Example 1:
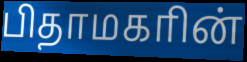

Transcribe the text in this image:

பிதாமகரின்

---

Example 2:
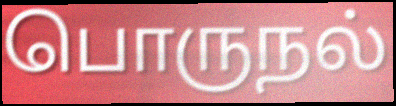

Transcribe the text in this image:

பொருநல்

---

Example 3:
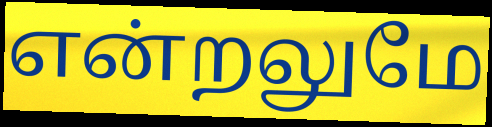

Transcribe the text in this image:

என்றலுமே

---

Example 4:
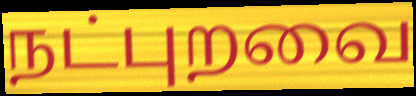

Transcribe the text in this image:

நட்புறவை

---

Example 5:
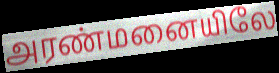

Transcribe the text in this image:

அரண்மனையிலே